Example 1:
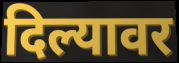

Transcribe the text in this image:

दिल्यावर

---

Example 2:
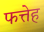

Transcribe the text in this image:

फत्तेह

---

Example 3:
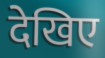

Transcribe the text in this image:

देखिए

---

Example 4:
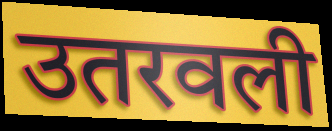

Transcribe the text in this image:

उतरवली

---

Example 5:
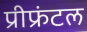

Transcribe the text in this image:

प्रीफ्रंटल